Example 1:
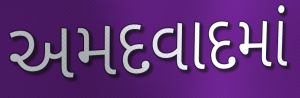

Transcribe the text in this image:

અમદવાદમાં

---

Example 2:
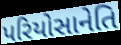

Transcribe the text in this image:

પરિયોસાનેતિ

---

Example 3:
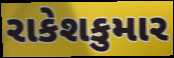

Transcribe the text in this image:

રાકેશકુમાર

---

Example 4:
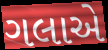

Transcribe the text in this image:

ગલાએ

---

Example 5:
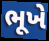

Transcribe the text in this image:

ભૂખે